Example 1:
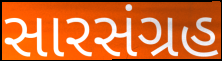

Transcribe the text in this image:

સારસંગ્રહ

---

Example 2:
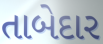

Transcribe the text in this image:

તાબેદાર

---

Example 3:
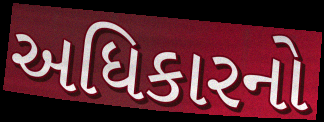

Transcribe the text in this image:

અધિકારનો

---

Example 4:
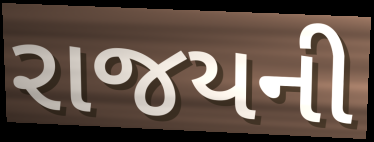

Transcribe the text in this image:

રાજયની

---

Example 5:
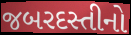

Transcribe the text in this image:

જબરદસ્તીનો